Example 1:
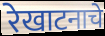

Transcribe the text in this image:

रेखाटनाचे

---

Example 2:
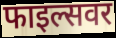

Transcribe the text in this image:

फाइल्सवर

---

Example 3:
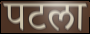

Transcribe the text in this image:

पटला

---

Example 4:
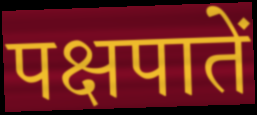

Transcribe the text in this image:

पक्षपातें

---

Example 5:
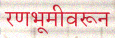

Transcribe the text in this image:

रणभूमीवरून